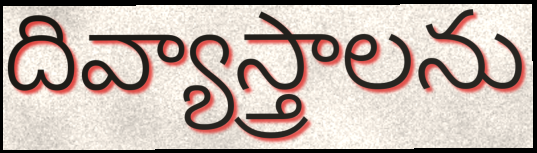
దివ్యాస్త్రాలను